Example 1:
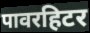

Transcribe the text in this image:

पावरहिटर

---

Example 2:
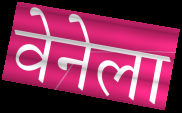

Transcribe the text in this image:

वेनेला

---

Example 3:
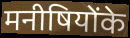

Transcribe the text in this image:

मनीषियोंके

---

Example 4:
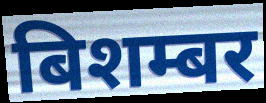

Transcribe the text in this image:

बिशम्बर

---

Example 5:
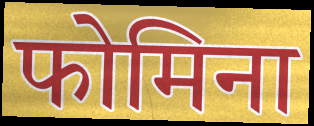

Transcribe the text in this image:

फोमिना